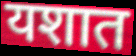
यशात